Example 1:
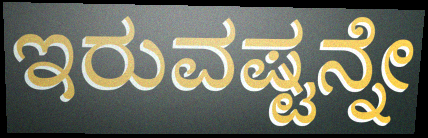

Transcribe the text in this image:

ಇರುವಷ್ಟನ್ನೇ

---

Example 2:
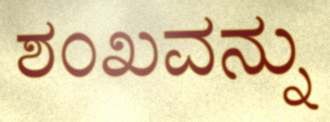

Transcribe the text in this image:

ಶಂಖವನ್ನು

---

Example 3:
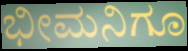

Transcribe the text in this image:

ಭೀಮನಿಗೂ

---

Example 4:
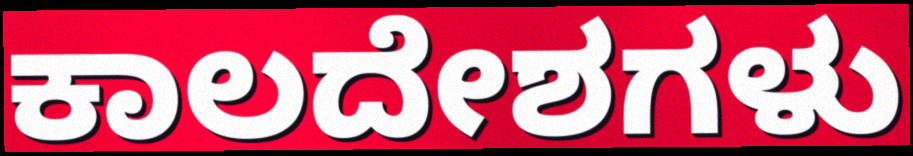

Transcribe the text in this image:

ಕಾಲದೇಶಗಳು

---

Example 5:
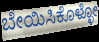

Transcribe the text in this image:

ಬೇಯಿಸಿಕೊಳ್ಳೋ